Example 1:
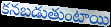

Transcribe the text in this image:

కనబడుతుంటాయి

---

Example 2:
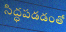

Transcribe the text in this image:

సిద్ధపడడంతో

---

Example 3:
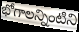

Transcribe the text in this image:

భోగాలన్నింటిని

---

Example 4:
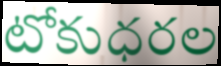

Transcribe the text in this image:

టోకుధరల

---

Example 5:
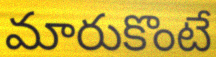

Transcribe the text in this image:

మారుకొంటే